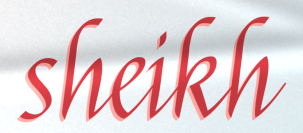
sheikh